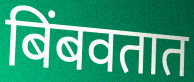
बिंबवतात